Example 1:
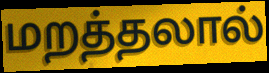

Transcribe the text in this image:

மறத்தலால்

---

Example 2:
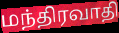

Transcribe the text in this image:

மந்திரவாதி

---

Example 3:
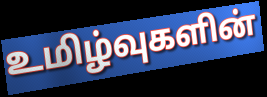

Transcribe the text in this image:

உமிழ்வுகளின்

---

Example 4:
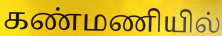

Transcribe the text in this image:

கண்மணியில்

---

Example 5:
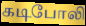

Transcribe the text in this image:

கடிபோலி